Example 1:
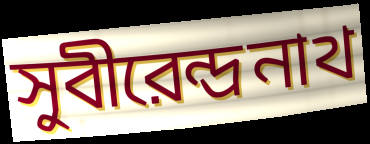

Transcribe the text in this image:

সুবীরেন্দ্রনাথ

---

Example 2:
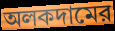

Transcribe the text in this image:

অলকদামের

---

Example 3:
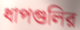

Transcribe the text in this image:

ধাপগুলির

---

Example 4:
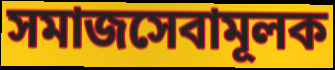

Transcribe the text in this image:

সমাজসেবামূলক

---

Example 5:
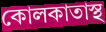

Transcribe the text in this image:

কোলকাতাস্থ